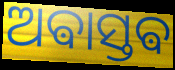
ଅଵାସ୍ତଵ